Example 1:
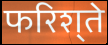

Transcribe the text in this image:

फरिश्ते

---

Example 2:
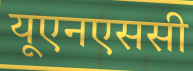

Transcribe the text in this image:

यूएनएससी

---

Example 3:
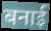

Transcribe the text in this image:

बनाई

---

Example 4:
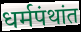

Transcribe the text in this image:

धर्मपंथांत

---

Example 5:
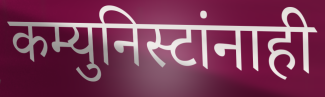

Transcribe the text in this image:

कम्युनिस्टांनाही